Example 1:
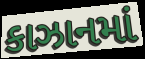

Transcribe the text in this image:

કાઝાનમાં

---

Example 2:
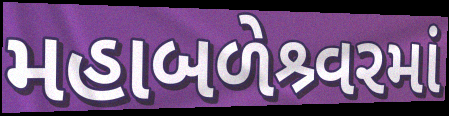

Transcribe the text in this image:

મહાબળેશ્ર્વરમાં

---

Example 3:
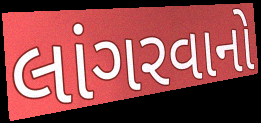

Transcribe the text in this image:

લાંગરવાનો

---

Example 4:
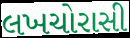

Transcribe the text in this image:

લખચોરાસી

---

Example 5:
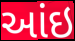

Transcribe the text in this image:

આંઇ